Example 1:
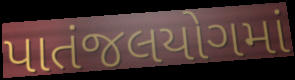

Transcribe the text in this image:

પાતંજલયોગમાં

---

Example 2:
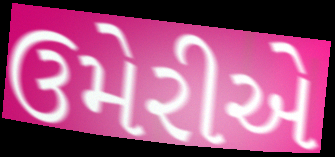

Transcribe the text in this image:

ઉમેરીએ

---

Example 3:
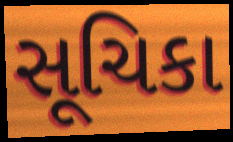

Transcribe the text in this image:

સૂચિકા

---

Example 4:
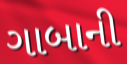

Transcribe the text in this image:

ગાબાની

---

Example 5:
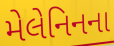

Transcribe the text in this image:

મેલેનિનના